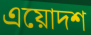
এয়োদশ